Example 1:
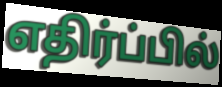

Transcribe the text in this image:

எதிர்ப்பில்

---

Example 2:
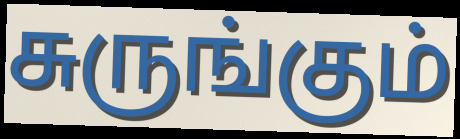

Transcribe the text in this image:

சுருங்கும்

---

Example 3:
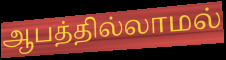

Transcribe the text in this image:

ஆபத்தில்லாமல்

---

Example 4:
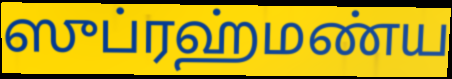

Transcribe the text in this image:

ஸுப்ரஹ்மண்ய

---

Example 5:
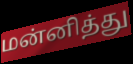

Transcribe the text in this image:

மன்னித்து